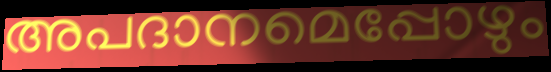
അപദാനമെപ്പോഴും